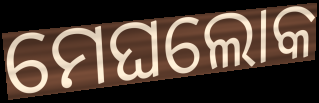
ମେଘଲୋକ